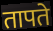
तापते